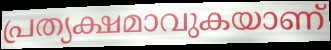
പ്രത്യക്ഷമാവുകയാണ്